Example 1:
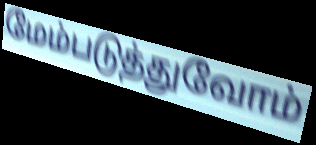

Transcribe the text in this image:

மேம்படுத்துவோம்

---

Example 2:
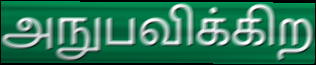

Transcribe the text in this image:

அநுபவிக்கிற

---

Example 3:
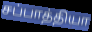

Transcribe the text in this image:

சப்பாத்தியா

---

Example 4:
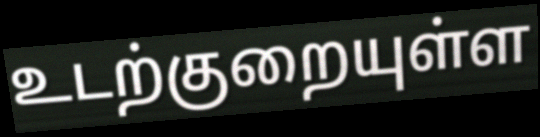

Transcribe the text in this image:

உடற்குறையுள்ள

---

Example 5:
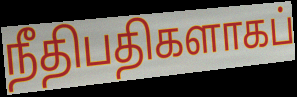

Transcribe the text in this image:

நீதிபதிகளாகப்